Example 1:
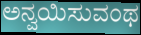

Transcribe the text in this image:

ಅನ್ವಯಿಸುವಂಥ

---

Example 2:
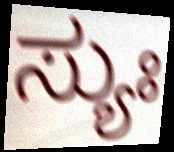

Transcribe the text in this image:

ಸ್ಯುಃ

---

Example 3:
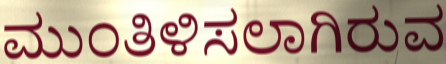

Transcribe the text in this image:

ಮುಂತಿಳಿಸಲಾಗಿರುವ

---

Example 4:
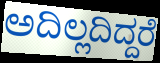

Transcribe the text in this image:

ಅದಿಲ್ಲದಿದ್ದರೆ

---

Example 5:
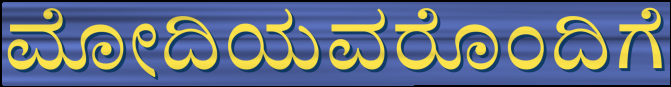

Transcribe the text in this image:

ಮೋದಿಯವರೊಂದಿಗೆ